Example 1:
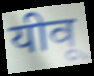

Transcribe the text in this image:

यीवू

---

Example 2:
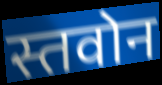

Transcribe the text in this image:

स्तवोन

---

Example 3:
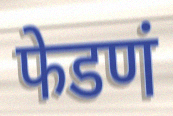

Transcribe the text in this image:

फेडणं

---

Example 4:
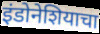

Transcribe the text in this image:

इंडोनेशियाचा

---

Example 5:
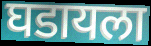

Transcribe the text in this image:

घडायला